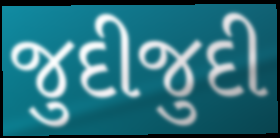
જુદીજુદી